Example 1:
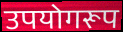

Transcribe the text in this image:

उपयोगरूप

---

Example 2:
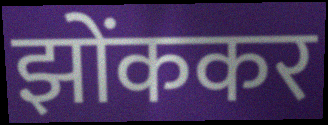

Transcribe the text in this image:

झोंककर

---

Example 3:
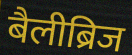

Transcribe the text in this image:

बैलीब्रिज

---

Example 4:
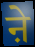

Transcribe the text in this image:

ऩे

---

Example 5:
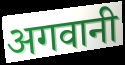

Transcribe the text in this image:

अगवानी